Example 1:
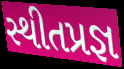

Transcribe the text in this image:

સ્થીતપ્રજ્ઞ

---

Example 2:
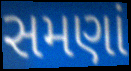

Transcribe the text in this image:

સમણાં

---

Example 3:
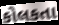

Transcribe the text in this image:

કોલકતા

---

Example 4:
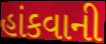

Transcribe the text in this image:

હાંકવાની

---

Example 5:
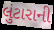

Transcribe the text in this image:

લુંટારાની